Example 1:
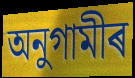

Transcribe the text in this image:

অনুগামীৰ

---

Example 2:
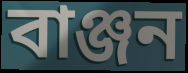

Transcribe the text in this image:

বাঞ্জন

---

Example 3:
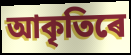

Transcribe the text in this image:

আকৃতিৰে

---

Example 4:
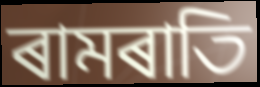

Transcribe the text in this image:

ৰামৰাতি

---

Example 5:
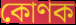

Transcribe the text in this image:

কোণক